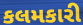
કલમકારી